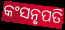
କଂସନୃପତି